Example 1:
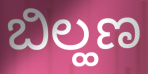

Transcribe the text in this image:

ಬಿಲ್ಹಣ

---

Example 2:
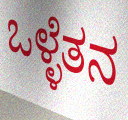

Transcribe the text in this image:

ಒಳ್ಳೆತನ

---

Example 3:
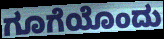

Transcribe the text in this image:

ಗೂಗೆಯೊಂದು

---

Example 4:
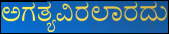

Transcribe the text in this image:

ಅಗತ್ಯವಿರಲಾರದು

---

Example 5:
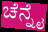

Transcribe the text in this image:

ಚೆನ್ನೈ